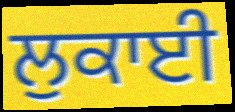
ਲੁਕਾਈ